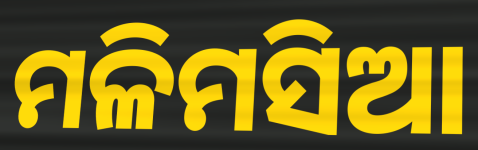
ମଳିମସିଆ